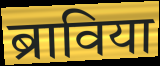
ब्राविया